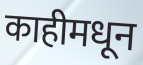
काहीमधून